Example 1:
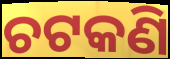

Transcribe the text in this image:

ଚଟକଣି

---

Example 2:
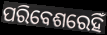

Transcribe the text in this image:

ପରିବେଶରେହିଁ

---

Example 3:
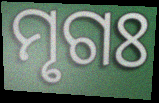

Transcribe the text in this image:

ମୃଗଃ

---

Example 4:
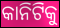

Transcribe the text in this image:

କାନିଟିକୁ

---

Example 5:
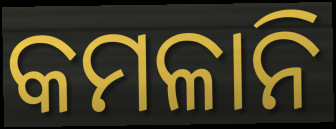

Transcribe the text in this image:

କମଳାନି